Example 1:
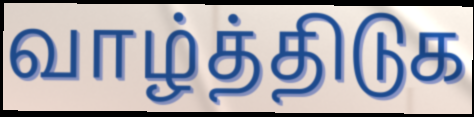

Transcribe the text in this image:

வாழ்த்திடுக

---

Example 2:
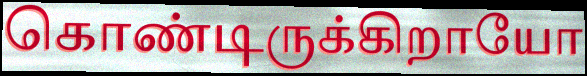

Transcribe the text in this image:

கொண்டிருக்கிறாயோ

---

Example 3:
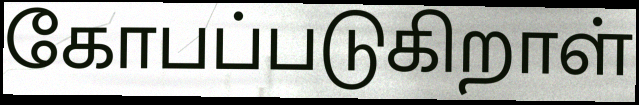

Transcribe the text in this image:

கோபப்படுகிறாள்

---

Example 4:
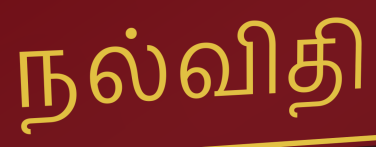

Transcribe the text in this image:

நல்விதி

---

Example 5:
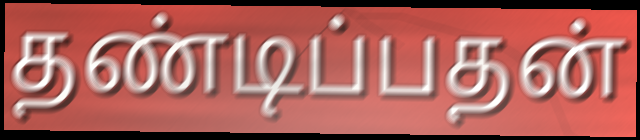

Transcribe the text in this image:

தண்டிப்பதன்